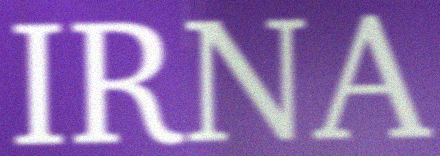
IRNA